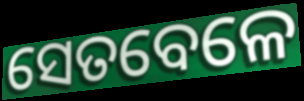
ସେତବେଳେ